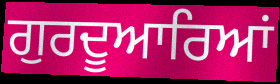
ਗੁਰਦੂਆਰਿਆਂ